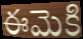
ఈమెకి